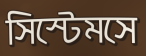
সিস্টেমসে